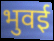
भुवई